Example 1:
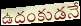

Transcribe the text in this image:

ఉదంకుడనే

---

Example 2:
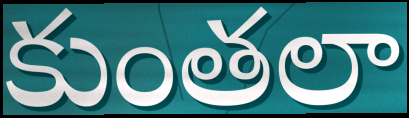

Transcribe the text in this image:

కుంతలా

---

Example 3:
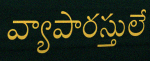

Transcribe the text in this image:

వ్యాపారస్తులే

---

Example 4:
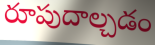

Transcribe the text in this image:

రూపుదాల్చడం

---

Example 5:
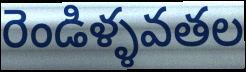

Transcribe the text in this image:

రెండిళ్ళవతల